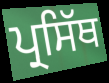
ਪ੍ਰਸਿੱਥ